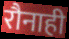
रौनाही